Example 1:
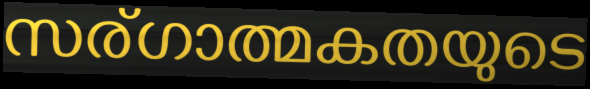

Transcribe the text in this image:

സര്ഗാത്മകതയുടെ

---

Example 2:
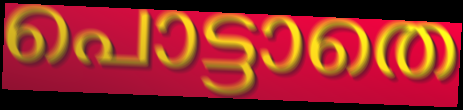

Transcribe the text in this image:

പൊട്ടാതെ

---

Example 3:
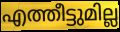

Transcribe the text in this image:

എത്തീട്ടുമില്ല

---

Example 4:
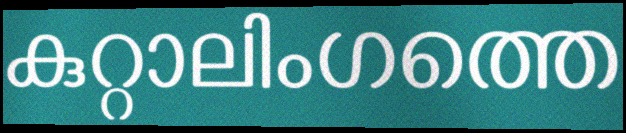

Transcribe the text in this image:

കുറ്റാലിംഗത്തെ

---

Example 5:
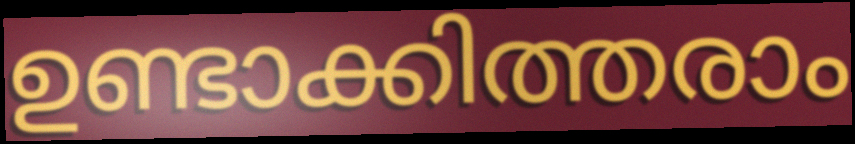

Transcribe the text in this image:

ഉണ്ടാക്കിത്തരാം